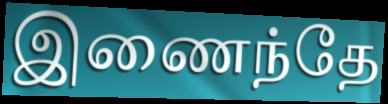
இணைந்தே